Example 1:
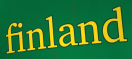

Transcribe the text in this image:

finland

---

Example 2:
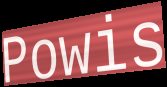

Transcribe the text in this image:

Powis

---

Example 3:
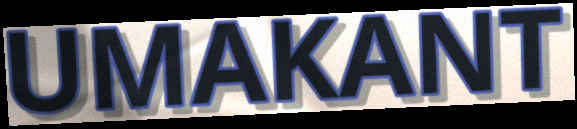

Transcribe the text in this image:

UMAKANT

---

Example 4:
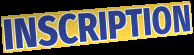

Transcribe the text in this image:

INSCRIPTION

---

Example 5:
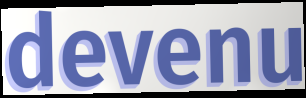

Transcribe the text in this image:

devenu